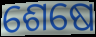
ଶେଷେ